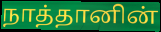
நாத்தானின்